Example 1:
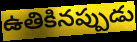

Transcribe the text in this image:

ఉతికినప్పుడు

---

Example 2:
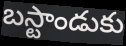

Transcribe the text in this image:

బస్టాండుకు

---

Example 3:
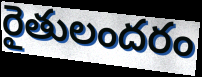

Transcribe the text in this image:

రైతులందరం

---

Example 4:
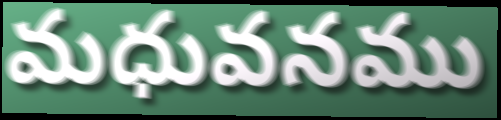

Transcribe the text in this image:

మధువనము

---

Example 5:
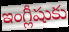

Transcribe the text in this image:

ఇంగ్లీషుకు